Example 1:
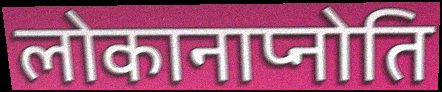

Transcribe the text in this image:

लोकानाप्नोति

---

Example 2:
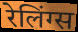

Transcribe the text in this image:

रेलिंग्स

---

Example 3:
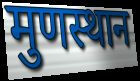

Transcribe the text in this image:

मुणस्थान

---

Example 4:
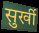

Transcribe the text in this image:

सुर्खी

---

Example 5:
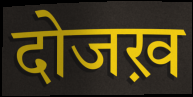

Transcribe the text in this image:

दोजख़